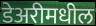
डेअरीमधील